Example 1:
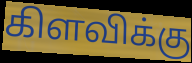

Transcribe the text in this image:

கிளவிக்கு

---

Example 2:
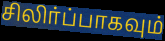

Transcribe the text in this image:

சிலிர்ப்பாகவும்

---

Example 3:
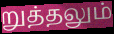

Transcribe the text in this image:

றுத்தலும்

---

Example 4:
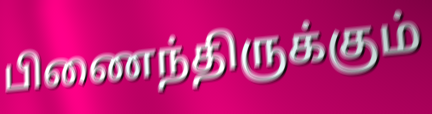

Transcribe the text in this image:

பிணைந்திருக்கும்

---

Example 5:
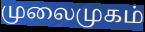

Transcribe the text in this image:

முலைமுகம்